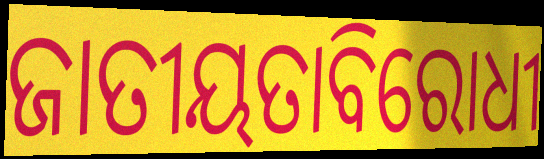
ଜାତୀୟତାବିରୋଧୀ